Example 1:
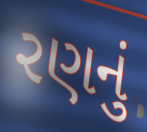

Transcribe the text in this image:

રણનું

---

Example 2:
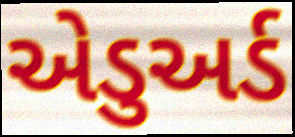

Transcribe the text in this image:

એડુઅર્ડ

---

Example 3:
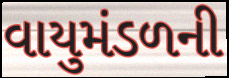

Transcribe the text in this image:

વાયુમંડળની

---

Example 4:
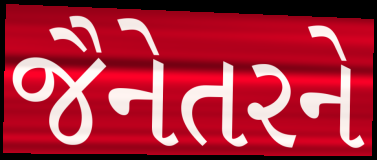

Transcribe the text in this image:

જૈનેતરને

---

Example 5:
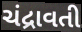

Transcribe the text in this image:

ચંદ્રાવતી